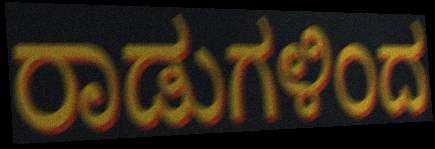
ರಾಡುಗಳಿಂದ